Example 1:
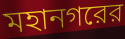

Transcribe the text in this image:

মহানগরের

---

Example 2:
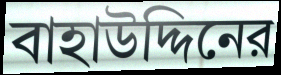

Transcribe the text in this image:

বাহাউদ্দিনের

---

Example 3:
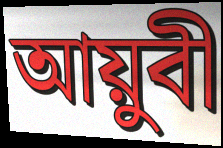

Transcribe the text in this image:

আয়ুবী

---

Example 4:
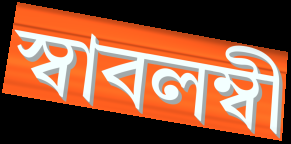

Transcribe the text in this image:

স্বাবলম্বী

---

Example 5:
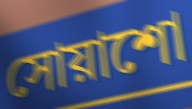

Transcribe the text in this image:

সোয়াশো